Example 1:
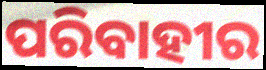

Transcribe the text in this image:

ପରିବାହୀର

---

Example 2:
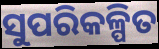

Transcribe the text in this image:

ସୁପରିକଳ୍ପିତ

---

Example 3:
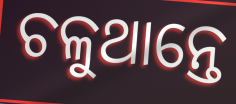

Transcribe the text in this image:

ଚଳୁଥାନ୍ତେ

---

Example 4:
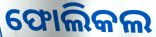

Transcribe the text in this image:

ଫୋଲିକଲ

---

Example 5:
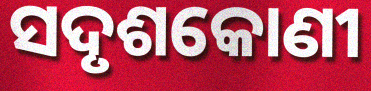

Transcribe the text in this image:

ସଦୃଶକୋଣୀ